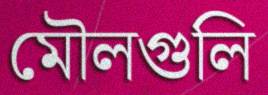
মৌলগুলি